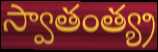
స్వాతంత్య్ర